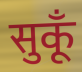
सुकूँ